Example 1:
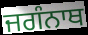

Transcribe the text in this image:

ਜਗੰਨਾਥ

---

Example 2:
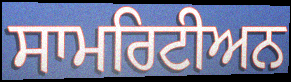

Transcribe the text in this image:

ਸਾਮਰਿਟੀਅਨ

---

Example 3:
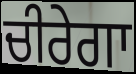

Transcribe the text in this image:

ਚੀਰੇਗਾ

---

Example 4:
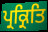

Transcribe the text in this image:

ਪ੍ਰਕ੍ਰਿਤਿ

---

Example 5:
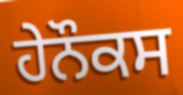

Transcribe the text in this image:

ਹੇਨੌਕਸ